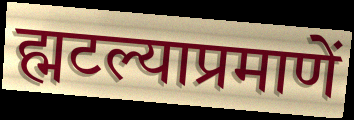
ह्मटल्याप्रमाणें